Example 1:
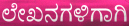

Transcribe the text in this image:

ಲೇಖನಗಳಿಗಾಗಿ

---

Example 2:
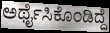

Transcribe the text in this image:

ಅರ್ಥೈಸಿಕೊಂಡಿದ್ದೆ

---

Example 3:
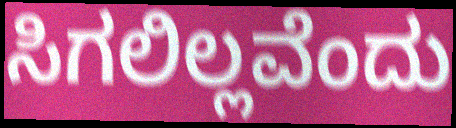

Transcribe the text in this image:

ಸಿಗಲಿಲ್ಲವೆಂದು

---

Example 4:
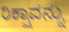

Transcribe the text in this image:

ರಿಕ್ಷಾವನ್ನು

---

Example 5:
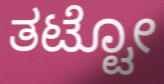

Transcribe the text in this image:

ತಟ್ಟೋ